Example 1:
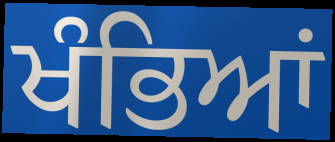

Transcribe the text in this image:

ਖੰਭਿਆਂ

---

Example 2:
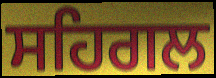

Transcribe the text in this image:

ਸਹਿਗਲ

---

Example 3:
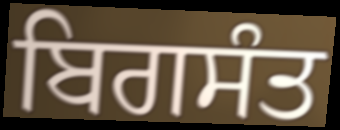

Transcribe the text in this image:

ਬਿਗਸੰਤ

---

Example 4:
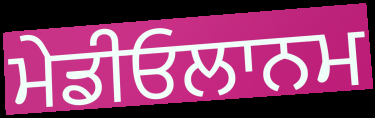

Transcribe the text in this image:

ਮੇਡੀਓਲਾਨਮ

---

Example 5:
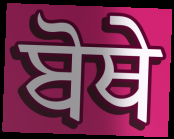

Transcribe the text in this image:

ਬੋਥੇ